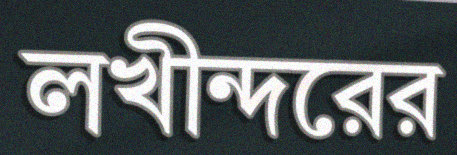
লখীন্দরের